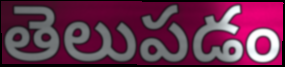
తెలుపడం